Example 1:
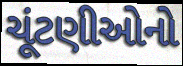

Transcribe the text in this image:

ચૂંટણીઓનો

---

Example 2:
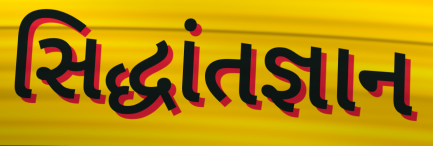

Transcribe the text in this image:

સિદ્ધાંતજ્ઞાન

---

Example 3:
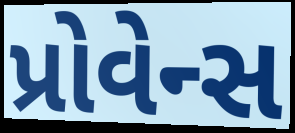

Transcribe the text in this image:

પ્રોવેન્સ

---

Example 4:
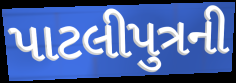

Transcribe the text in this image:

પાટલીપુત્રની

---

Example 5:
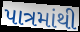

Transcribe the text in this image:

પાત્રમાંથી